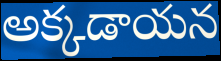
అక్కడాయన